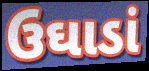
ઉઘાડાં